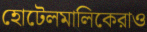
হোটেলমালিকেরাও